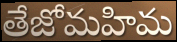
తేజోమహిమ